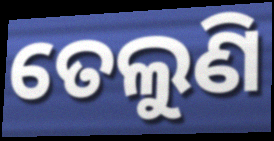
ତେଲୁଣି